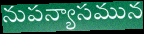
నుపన్యాసమున